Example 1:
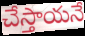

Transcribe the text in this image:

చేస్తాయనే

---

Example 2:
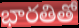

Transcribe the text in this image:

భారతితో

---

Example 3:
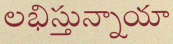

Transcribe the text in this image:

లభిస్తున్నాయా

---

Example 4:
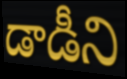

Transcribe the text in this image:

డాడీని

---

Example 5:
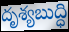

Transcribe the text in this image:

దృశ్యబుద్ధి